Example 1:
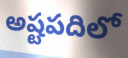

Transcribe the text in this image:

అష్టపదిలో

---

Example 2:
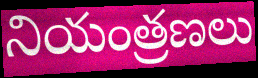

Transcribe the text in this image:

నియంత్రణలు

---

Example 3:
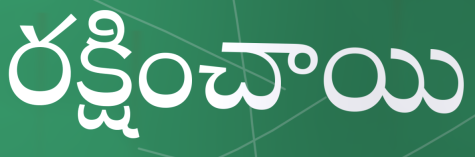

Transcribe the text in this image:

రక్షించాయి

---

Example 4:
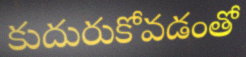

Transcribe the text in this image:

కుదురుకోవడంతో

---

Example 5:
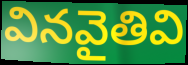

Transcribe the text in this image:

వినవైతివి